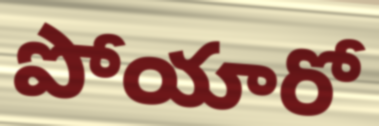
పోయారో